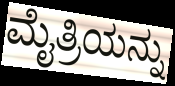
ಮೈತ್ರಿಯನ್ನು